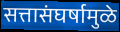
सत्तासंघर्षामुळे